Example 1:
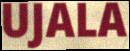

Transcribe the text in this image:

UJALA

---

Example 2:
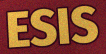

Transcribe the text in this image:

ESIS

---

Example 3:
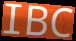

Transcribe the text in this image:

IBC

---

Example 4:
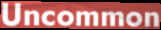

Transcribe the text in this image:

Uncommon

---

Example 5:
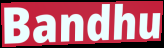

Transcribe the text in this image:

Bandhu